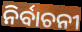
ନିର୍ବାଚନୀ